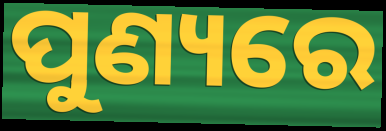
ପୁଣ୍ୟରେ